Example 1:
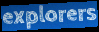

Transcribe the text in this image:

explorers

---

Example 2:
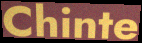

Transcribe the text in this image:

Chinte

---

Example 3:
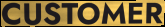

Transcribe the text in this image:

CUSTOMER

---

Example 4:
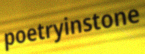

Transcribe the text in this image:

poetryinstone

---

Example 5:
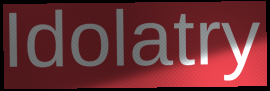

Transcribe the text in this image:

Idolatry